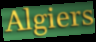
Algiers